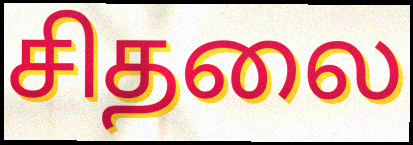
சிதலை